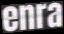
enra